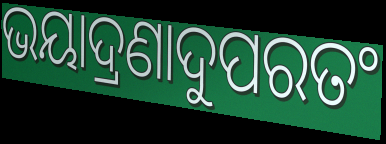
ଭୟାଦ୍ରଣାଦୁପରତଂ